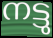
നട്ടു